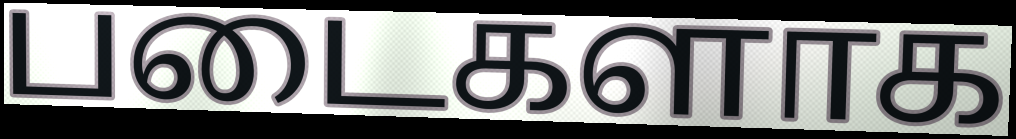
படைகளாக